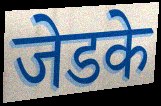
जेडके